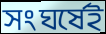
সংঘর্ষেই